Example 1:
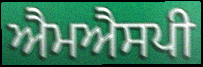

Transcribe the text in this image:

ਐਮਐਸਪੀ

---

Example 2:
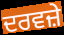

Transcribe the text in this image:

ਦਰਵਜ਼ੇ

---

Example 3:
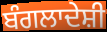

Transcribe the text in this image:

ਬੰਗਲਾਦੇਸ਼ੀ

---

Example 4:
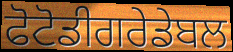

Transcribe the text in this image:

ਫੋਟੋਡੀਗਰੇਡੇਬਲ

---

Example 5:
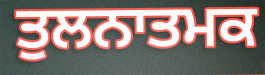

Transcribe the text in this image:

ਤੁਲਨਾਤਮਕ